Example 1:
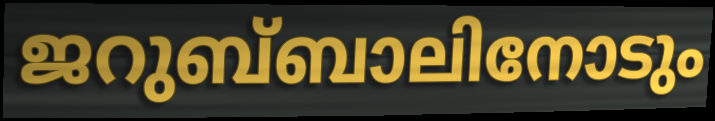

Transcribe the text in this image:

ജറുബ്‌ബാലിനോടും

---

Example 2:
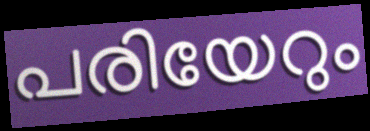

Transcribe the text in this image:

പരിയേറും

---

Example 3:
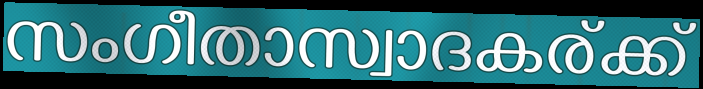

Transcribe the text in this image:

സംഗീതാസ്വാദകര്ക്ക്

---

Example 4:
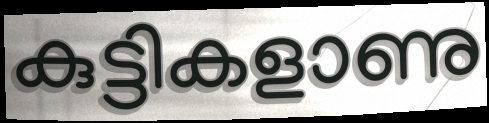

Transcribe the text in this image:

കുട്ടികളാണു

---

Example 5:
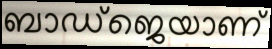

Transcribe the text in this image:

ബാഡ്ജെയാണ്